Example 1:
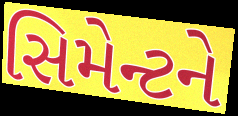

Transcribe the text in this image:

સિમેન્ટને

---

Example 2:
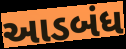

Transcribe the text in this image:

આડબંધ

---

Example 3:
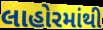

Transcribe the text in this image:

લાહોરમાંથી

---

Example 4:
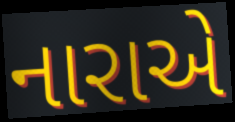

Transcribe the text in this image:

નારાએ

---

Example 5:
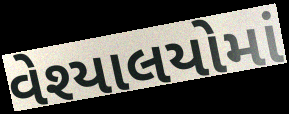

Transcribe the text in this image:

વેશ્યાલયોમાં